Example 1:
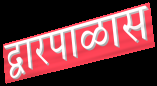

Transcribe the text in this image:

द्वारपाळास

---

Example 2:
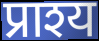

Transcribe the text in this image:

प्राश्य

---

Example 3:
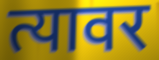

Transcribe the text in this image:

त्यावर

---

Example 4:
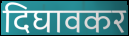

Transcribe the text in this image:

दिघावकर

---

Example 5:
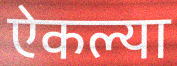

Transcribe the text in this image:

ऐकल्या